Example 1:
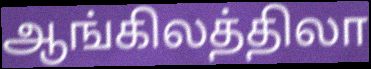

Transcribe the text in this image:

ஆங்கிலத்திலா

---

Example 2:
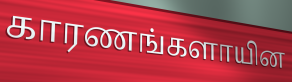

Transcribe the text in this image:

காரணங்களாயின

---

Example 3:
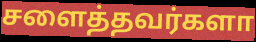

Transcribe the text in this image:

சளைத்தவர்களா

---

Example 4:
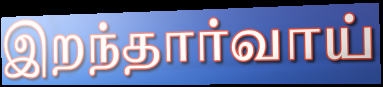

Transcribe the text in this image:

இறந்தார்வாய்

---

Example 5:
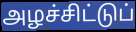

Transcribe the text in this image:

அழச்சிட்டுப்